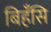
बिहँसि